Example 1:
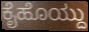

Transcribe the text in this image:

ಕೈಹೊಯ್ದು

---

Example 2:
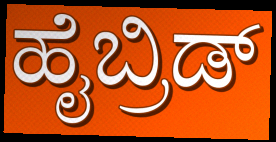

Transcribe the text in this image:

ಹೈಬ್ರಿಡ್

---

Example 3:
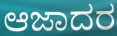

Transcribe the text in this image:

ಆಜಾದರ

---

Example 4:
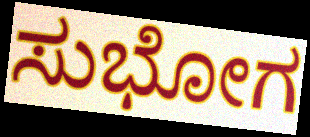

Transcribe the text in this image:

ಸುಭೋಗ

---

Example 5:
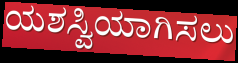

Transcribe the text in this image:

ಯಶಸ್ವಿಯಾಗಿಸಲು